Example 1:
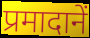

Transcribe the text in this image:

प्रमादानें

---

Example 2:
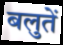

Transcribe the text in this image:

बलुतें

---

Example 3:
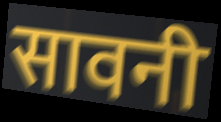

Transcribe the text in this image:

सावनी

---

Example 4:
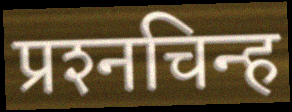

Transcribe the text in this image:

प्रश्नचिन्ह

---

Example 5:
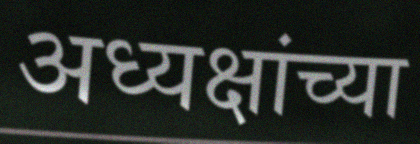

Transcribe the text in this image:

अध्यक्षांच्या